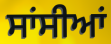
ਸਾਂਸੀਆਂ